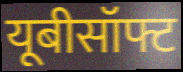
यूबीसॉफ्ट